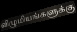
விழுமியங்களுக்கு